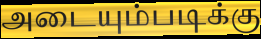
அடையும்படிக்கு